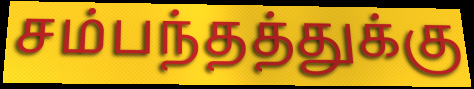
சம்பந்தத்துக்கு